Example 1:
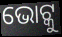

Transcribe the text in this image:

ଭୋଟ୍କୁ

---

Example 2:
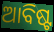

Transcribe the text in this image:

ଆବିଷ୍ଟ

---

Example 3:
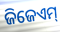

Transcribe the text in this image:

ଜିଜେଏମ୍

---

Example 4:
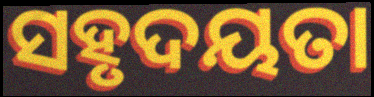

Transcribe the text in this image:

ସହୃଦୟତା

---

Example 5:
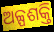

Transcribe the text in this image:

ଅଳ୍ପଶକ୍ତି